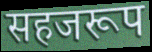
सहजरूप